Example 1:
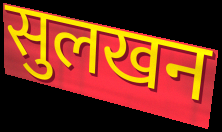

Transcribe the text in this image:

सुलखन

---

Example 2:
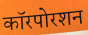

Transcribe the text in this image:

कॉरपोरशन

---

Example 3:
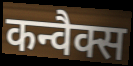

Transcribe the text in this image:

कन्वैक्स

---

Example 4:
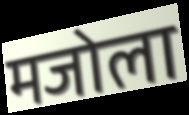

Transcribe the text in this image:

मजोला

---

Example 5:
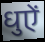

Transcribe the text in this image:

धुऐं